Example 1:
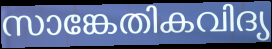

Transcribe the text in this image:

സാങ്കേതികവിദ്യ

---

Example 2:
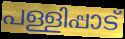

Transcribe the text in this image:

പള്ളിപ്പാട്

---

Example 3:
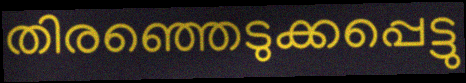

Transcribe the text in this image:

തിരഞ്ഞെടുക്കപ്പെട്ടു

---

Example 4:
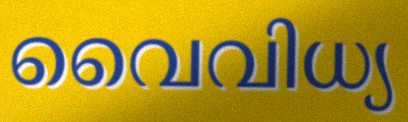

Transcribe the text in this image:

വൈവിധ്യ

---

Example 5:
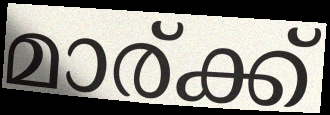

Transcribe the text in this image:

മാര്ക്ക്